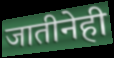
जातीनेही